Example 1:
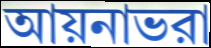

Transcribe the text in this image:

আয়নাভরা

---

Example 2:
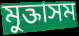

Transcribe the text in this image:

মুক্তাসম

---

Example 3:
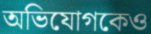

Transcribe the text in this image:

অভিযোগকেও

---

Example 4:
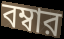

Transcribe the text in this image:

বম্বার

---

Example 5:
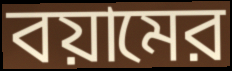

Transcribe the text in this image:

বয়ামের